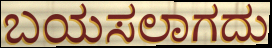
ಬಯಸಲಾಗದು